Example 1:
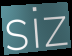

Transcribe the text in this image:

siz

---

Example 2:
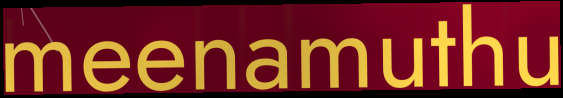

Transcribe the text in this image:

meenamuthu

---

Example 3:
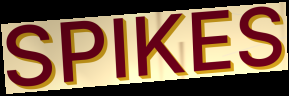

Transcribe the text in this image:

SPIKES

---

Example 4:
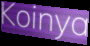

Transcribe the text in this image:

Koinya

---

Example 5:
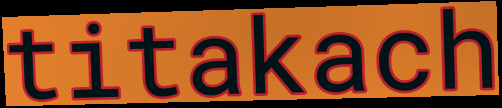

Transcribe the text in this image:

titakach